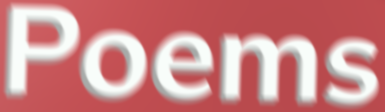
Poems